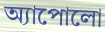
অ্যাপোলো